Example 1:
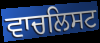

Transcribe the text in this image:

ਵਾਚਲਿਸਟ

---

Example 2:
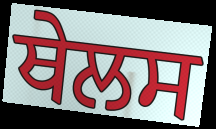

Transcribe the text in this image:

ਥੇਲਸ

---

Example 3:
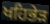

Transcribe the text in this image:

ਖਹਿਭੇੜ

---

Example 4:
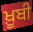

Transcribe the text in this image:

ਖ਼ੂਬੀ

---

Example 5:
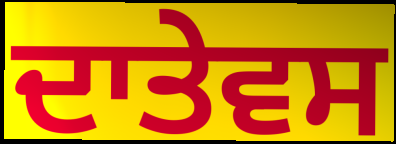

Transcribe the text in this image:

ਦਾਤੇਵਸ